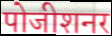
पोजीशनर